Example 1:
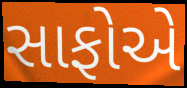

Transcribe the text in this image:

સાફોએ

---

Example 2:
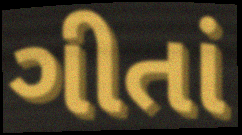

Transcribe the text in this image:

ગીતાં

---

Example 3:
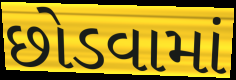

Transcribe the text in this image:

છોડવામાં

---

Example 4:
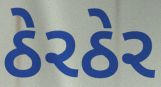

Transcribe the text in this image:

ઠેરઠેર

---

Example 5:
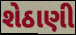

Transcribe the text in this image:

શેઠાણી